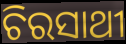
ଚିରସାଥୀ